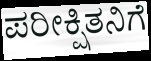
ಪರೀಕ್ಷಿತನಿಗೆ